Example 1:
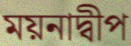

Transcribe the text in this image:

ময়নাদ্বীপ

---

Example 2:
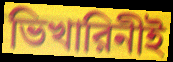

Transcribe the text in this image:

ভিখারিনীই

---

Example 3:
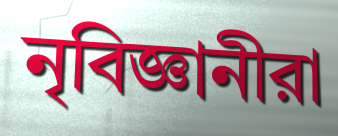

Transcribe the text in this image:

নৃবিজ্ঞানীরা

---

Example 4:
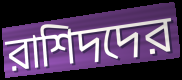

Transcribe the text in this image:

রাশিদদের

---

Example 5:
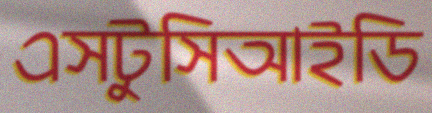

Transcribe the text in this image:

এসটুসিআইডি